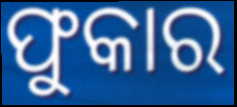
ଫୁକାର